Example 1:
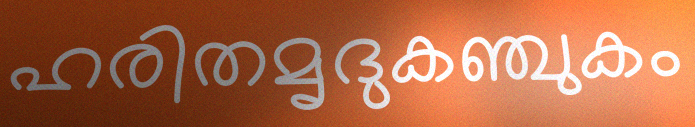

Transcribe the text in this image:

ഹരിതമൃദുകഞ്ചുകം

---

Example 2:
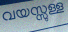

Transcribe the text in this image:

വയസ്സുള്ള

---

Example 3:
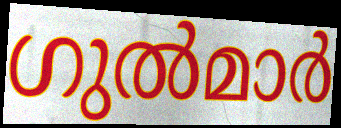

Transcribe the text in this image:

ഗുൽമാർ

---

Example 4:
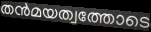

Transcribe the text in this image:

തൻമയത്വത്തോടെ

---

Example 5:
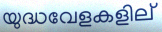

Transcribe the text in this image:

യുദ്ധവേളകളില്